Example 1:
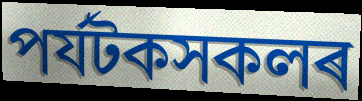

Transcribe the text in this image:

পৰ্যটকসকলৰ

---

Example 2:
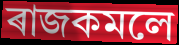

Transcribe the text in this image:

ৰাজকমলে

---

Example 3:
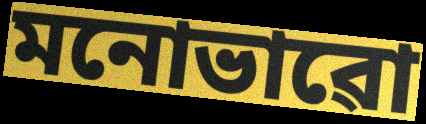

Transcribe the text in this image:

মনোভাৱো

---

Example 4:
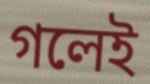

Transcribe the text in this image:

গলেই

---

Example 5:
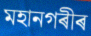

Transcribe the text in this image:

মহানগৰীৰ